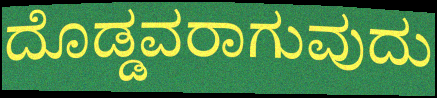
ದೊಡ್ಡವರಾಗುವುದು